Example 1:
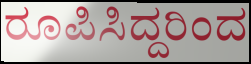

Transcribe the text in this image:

ರೂಪಿಸಿದ್ದರಿಂದ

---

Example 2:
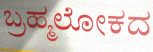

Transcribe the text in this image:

ಬ್ರಹ್ಮಲೋಕದ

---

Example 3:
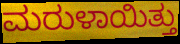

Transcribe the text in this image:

ಮರುಳಾಯಿತ್ತು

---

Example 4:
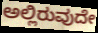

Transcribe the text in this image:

ಅಲ್ಲಿರುವುದೇ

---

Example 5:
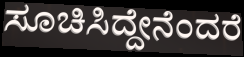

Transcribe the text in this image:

ಸೂಚಿಸಿದ್ದೇನೆಂದರೆ